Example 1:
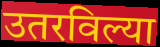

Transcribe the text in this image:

उतरविल्या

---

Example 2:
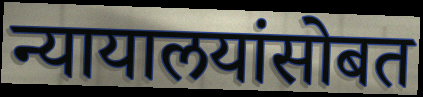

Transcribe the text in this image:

न्यायालयांसोबत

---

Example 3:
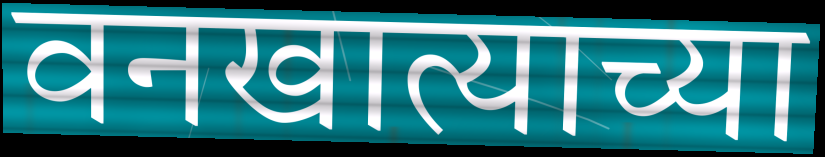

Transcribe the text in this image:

वनखात्याच्या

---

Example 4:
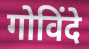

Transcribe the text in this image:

गोविंदे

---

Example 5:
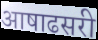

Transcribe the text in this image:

आषाढसरी